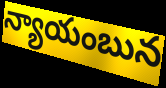
న్యాయంబున